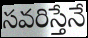
సవరిస్తేనే